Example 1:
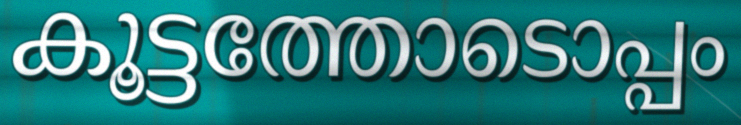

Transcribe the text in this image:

കൂട്ടത്തോടൊപ്പം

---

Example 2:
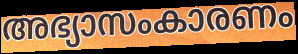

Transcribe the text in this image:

അഭ്യാസംകാരണം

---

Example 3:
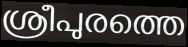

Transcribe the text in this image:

ശ്രീപുരത്തെ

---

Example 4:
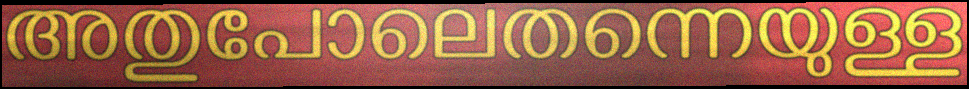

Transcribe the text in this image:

അതുപോലെതന്നെയുള്ള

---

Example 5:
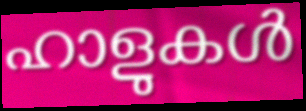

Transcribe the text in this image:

ഹാളുകൾ